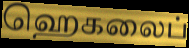
ஹெகலைப்